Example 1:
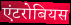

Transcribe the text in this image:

एंटरोबियस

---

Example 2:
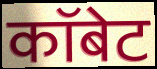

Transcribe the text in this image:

कॉबेट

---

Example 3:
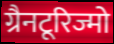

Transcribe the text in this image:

ग्रैनटूरिज्मो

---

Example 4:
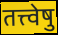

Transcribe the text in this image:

तत्त्वेषु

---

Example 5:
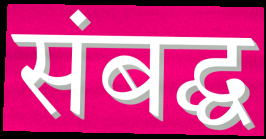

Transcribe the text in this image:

संबद्घ